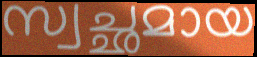
സ്വച്ഛമായ